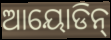
ଆୟୋଡିନ୍